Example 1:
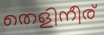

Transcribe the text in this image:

തെളിനീര്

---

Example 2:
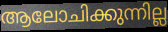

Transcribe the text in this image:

ആലോചിക്കുന്നില്ല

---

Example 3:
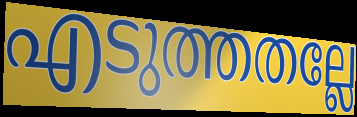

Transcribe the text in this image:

എടുത്തതല്ലേ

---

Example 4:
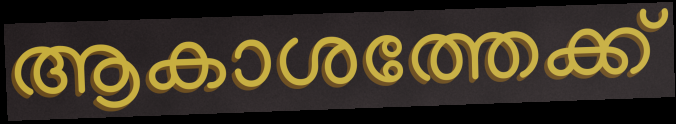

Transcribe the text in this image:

ആകാശത്തേക്ക്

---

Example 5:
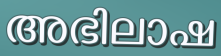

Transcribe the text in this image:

അഭിലാഷ